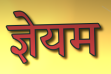
ज्ञेयम